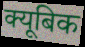
क्यूबिक